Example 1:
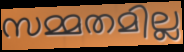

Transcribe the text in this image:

സമ്മതമില്ല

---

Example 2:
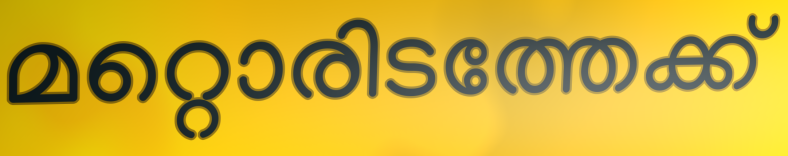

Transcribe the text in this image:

മറ്റൊരിടത്തേക്ക്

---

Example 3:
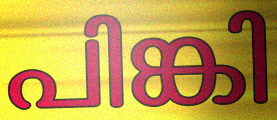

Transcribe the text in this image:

പിങ്കി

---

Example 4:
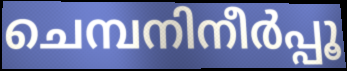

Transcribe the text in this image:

ചെമ്പനിനീർപ്പൂ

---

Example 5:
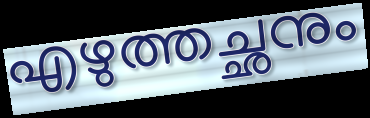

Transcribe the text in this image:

എഴുത്തച്ഛനും